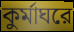
কুর্মাঘরে